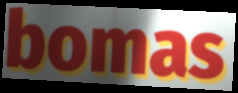
bomas